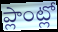
ప్లాంట్లో